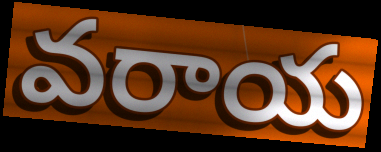
వరాయ